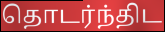
தொடர்ந்திட